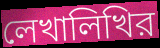
লেখালিখির